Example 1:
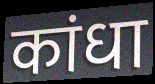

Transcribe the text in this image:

कांधा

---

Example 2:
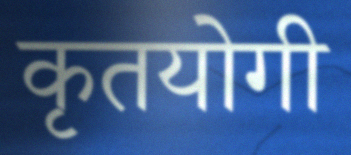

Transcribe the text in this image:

कृतयोगी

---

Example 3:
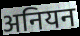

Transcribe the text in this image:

अनियन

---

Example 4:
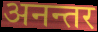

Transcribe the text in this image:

अनन्तर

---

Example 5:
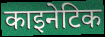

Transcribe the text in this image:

काइनेटिक